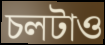
চলটাও